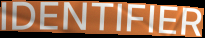
IDENTIFIER